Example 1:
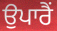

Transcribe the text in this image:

ਉਪਾਰੈਂ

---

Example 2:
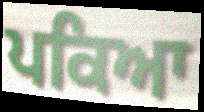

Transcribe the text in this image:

ਪਕਿਆ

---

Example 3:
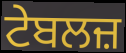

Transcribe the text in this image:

ਟੇਬਲਜ਼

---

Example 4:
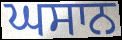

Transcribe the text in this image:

ਘਸਾਨ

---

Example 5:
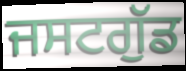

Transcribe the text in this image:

ਜਸਟਗੁੱਡ